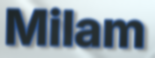
Milam